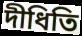
দীধিতি